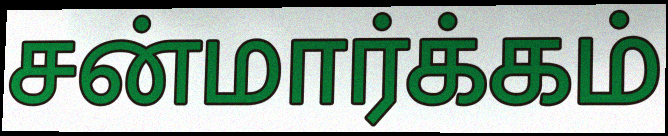
சன்மார்க்கம்